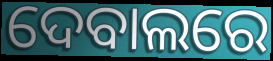
ଦେବାଲରେ